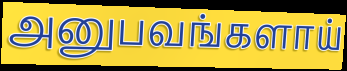
அனுபவங்களாய்